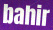
bahir